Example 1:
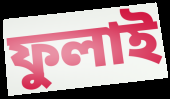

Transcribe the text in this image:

ফুলাই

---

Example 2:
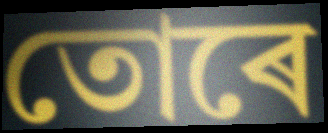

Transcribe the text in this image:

তোৰে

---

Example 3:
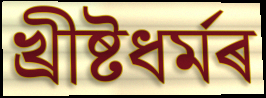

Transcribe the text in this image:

খ্ৰীষ্টধৰ্মৰ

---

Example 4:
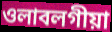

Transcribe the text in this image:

ওলাবলগীয়া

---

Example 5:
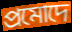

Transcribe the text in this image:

প্ৰমোদে